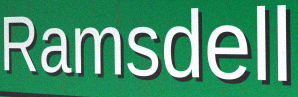
Ramsdell